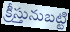
క్రీస్తునుబట్టి